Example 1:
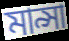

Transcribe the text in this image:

মান্সা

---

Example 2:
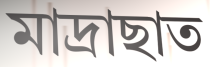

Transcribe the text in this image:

মাদ্ৰাছাত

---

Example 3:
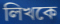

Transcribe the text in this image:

লিখকে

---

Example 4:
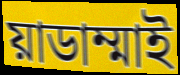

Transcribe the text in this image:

য়াডাম্মাই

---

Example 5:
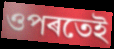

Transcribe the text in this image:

ওপৰতেই